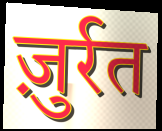
ज़ुर्रत